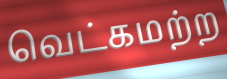
வெட்கமற்ற